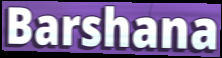
Barshana